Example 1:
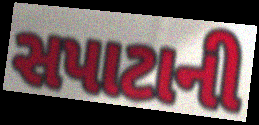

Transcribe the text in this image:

સપાટાની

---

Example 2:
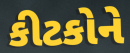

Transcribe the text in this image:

કીટકોને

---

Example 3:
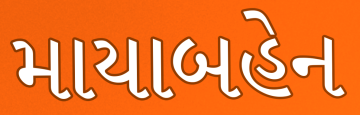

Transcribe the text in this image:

માયાબહેન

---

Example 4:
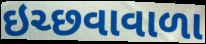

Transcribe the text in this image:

ઇચ્છવાવાળા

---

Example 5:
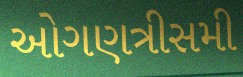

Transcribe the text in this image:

ઓગણત્રીસમી